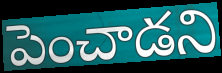
పెంచాడని